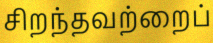
சிறந்தவற்றைப்